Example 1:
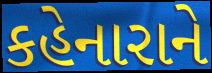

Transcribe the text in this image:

કહેનારાને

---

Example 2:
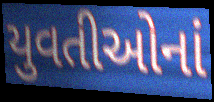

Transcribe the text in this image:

યુવતીઓનાં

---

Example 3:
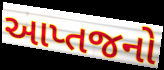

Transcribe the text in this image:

આપ્તજનો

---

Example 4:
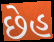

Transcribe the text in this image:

છેહ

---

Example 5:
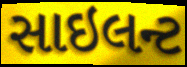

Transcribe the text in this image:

સાઇલન્ટ